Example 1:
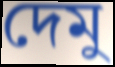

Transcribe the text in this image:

দেমু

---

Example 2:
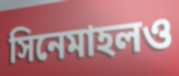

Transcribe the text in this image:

সিনেমাহলও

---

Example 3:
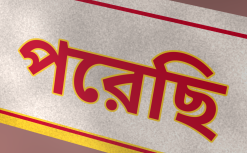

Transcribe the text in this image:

পরেছি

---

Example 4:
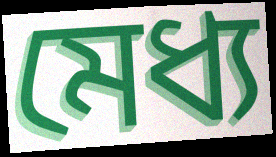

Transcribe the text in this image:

মেধ্য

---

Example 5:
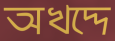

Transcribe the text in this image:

অখদ্দে